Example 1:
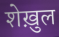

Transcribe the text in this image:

शेख़ुल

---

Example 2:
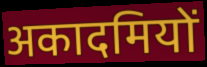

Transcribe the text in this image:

अकादमियों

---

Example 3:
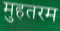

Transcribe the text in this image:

मुहतरम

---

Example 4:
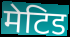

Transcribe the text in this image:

मेटिड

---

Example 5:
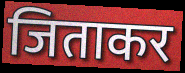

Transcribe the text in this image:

जिताकर